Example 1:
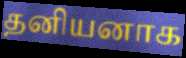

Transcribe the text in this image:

தனியனாக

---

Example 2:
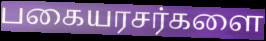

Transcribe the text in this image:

பகையரசர்களை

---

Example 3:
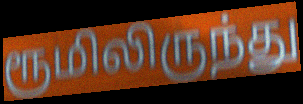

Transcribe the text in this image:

ரூமிலிருந்து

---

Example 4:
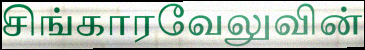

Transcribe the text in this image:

சிங்காரவேலுவின்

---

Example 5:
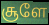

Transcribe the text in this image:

சூளே